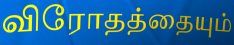
விரோதத்தையும்